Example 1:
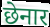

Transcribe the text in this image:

छेनार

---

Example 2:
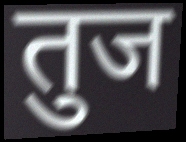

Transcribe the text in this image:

तुज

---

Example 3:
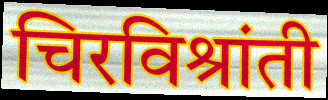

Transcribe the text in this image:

चिरविश्रांती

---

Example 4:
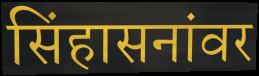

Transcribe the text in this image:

सिंहासनांवर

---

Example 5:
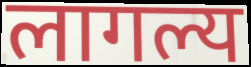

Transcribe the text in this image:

लागल्य